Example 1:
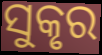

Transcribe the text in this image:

ସୁକୃର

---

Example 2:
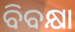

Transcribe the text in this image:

ବିବକ୍ଷା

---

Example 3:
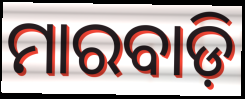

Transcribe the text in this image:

ମାରବାଡ଼ି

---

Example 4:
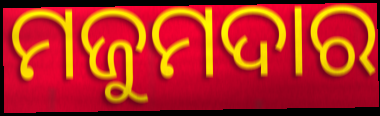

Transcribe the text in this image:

ମଜୁମଦାର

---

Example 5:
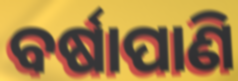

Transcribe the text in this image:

ବର୍ଷାପାଣି